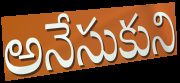
అనేసుకుని